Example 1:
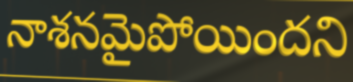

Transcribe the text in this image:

నాశనమైపోయిందని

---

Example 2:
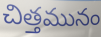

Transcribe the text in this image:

చిత్తమునం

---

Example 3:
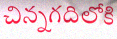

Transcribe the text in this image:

చిన్నగదిలోకి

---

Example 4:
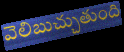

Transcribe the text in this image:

వెలిబుచ్చుతుంది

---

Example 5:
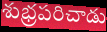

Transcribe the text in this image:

శుభ్రపరిచాడు